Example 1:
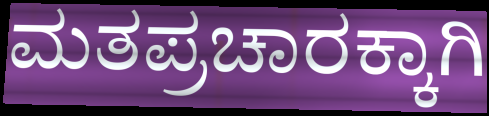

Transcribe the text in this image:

ಮತಪ್ರಚಾರಕ್ಕಾಗಿ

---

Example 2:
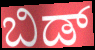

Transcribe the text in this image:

ಬಿಡ್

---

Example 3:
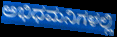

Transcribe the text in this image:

ಅಭಿಧಮನಿಗಳಲ್ಲಿ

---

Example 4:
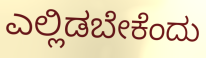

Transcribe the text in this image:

ಎಲ್ಲಿಡಬೇಕೆಂದು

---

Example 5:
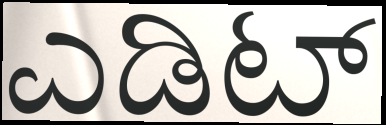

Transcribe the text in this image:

ಎಡಿಟ್